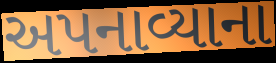
અપનાવ્યાના